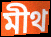
মীথ